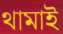
থামাই